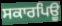
ਸਕਾਰਪਿਊ